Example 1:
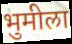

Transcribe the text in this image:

भुमीला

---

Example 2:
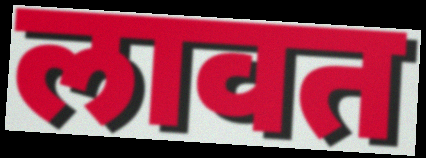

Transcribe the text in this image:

लावत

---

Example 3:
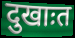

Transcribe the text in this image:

दुखाःत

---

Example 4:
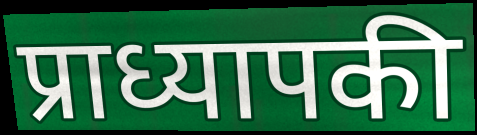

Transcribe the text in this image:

प्राध्यापकी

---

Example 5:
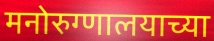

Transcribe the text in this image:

मनोरुग्णालयाच्या